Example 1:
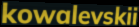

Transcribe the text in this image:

kowalevskii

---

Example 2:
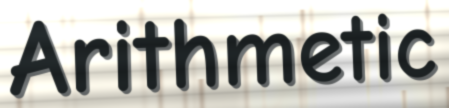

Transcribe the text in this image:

Arithmetic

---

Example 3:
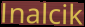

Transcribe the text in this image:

Inalcik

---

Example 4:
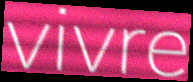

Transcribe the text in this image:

vivre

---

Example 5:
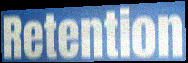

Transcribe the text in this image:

Retention